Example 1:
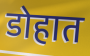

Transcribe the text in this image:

डोहात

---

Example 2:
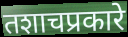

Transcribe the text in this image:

तशाचप्रकारे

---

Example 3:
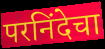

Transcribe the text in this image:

परनिंदेचा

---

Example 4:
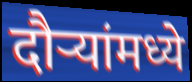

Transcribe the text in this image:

दौऱ्यांमध्ये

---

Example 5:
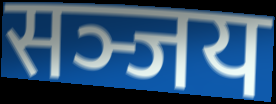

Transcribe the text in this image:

सञ्जय